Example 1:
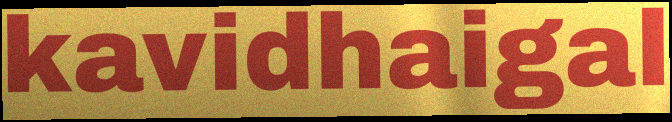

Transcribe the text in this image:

kavidhaigal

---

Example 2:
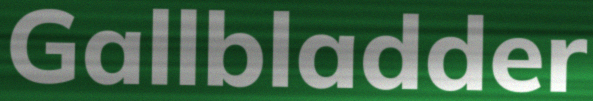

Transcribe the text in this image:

Gallbladder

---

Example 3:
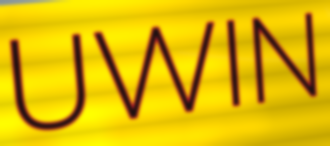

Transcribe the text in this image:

UWIN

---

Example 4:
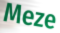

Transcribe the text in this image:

Meze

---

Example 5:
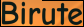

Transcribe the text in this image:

Birute